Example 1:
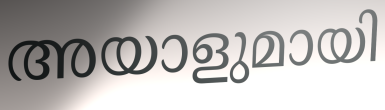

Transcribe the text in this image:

അയാളുമായി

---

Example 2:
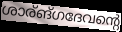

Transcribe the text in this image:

ശാര്ങ്ഗദേവന്റെ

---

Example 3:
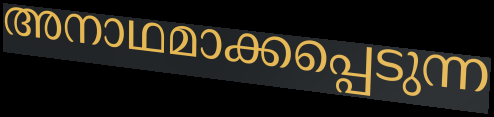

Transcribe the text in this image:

അനാഥമാക്കപ്പെടുന്ന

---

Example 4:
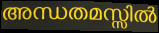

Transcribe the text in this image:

അന്ധതമസ്സിൽ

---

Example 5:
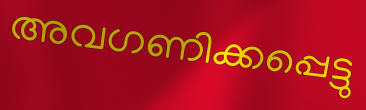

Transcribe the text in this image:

അവഗണിക്കപ്പെട്ടു